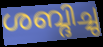
ശബ്ദിച്ചു